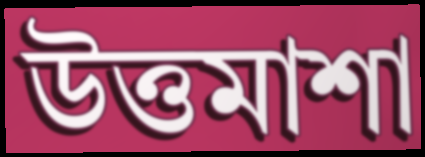
উত্তমাশা